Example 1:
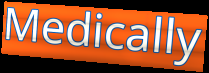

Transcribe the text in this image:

Medically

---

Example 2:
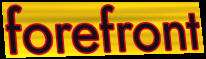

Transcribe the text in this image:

forefront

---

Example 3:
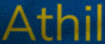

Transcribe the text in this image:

Athil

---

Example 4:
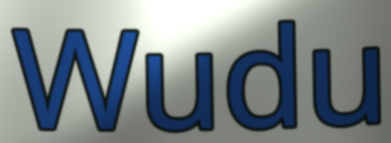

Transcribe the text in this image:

Wudu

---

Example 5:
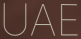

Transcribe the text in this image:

UAE